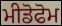
ਮੀਡੋਫੋਮ